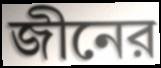
জীনের